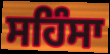
ਸਹਿੰਸਾ